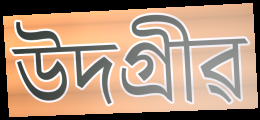
উদগ্ৰীৱ